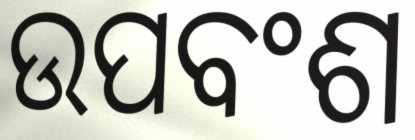
ଉପବଂଶ